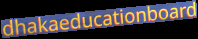
dhakaeducationboard